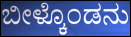
ಬೀಳ್ಕೊಂಡನು